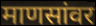
माणसांवर